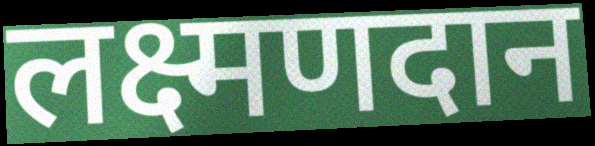
लक्ष्मणदान